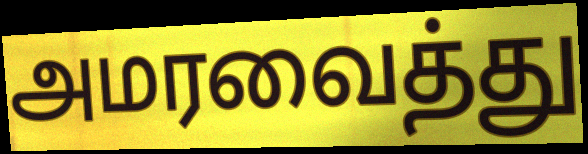
அமரவைத்து